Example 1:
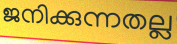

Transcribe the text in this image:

ജനിക്കുന്നതല്ല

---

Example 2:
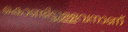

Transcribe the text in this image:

കൊണ്ടിട്ടുള്ളവനാണ്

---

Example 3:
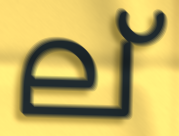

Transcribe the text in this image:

ല്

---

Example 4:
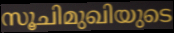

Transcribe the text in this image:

സൂചിമുഖിയുടെ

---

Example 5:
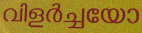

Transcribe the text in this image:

വിളർച്ചയോ